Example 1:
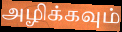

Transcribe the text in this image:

அழிக்கவும்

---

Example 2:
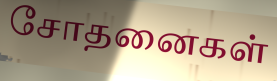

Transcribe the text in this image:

சோதனைகள்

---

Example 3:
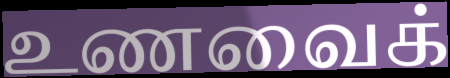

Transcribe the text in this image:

உணவைக்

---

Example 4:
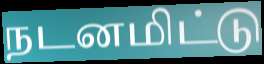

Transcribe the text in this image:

நடனமிட்டு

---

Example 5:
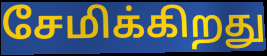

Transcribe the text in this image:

சேமிக்கிறது